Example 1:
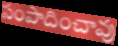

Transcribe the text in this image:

సంపాదించావు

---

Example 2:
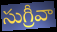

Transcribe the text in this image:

సుగ్రీవా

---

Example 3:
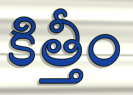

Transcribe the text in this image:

కిత్తీం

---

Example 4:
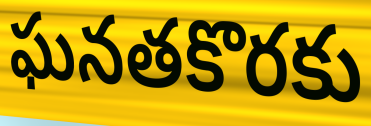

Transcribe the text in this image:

ఘనతకొరకు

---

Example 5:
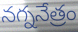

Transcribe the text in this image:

నగ్ననేత్రం